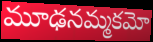
మూఢనమ్మకమో